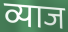
व्याज